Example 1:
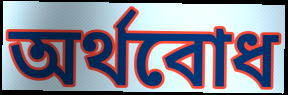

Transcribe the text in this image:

অৰ্থবোধ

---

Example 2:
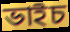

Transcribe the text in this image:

ভাইচ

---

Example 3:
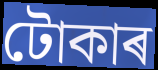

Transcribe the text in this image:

টোকাৰ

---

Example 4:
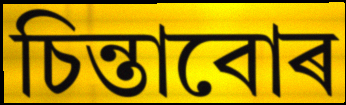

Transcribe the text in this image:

চিন্তাবোৰ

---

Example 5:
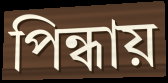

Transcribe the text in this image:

পিন্ধায়